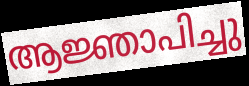
ആജ്ഞാപിച്ചു